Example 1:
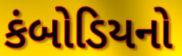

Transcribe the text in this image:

કંબોડિયનો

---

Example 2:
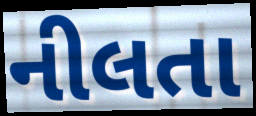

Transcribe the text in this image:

નીલતા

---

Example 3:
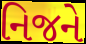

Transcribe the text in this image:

નિજને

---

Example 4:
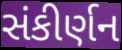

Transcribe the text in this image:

સંકીર્ણન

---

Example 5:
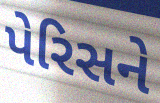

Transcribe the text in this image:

પેરિસને